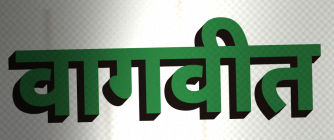
वागवीत